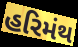
હરિમંથ